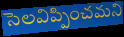
సెలవిప్పించమని